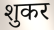
शुकर